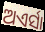
ଅଏର୍ସା